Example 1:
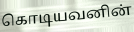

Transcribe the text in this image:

கொடியவனின்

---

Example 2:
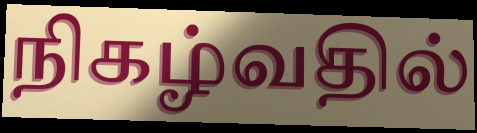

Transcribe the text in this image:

நிகழ்வதில்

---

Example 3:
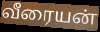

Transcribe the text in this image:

வீரையன்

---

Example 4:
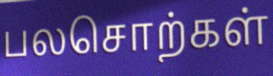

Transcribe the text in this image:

பலசொற்கள்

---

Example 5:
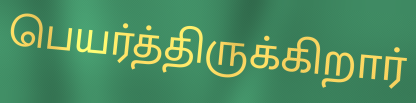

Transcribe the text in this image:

பெயர்த்திருக்கிறார்